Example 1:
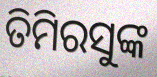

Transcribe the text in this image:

ତିମିରସୁଙ୍କ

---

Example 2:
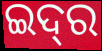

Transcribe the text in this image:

ଇଦ୍‍ର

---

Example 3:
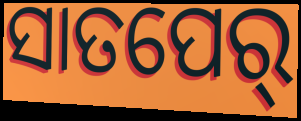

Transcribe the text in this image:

ସାତପେର୍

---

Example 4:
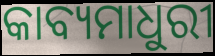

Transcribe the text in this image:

କାବ୍ୟମାଧୁରୀ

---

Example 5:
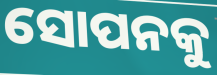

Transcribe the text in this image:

ସୋପନକୁ